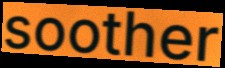
soother